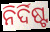
ନିର୍ଦିଷ୍ଟ